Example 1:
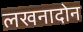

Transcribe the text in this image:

लखनादोन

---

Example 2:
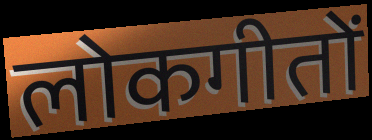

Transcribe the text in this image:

लोकगीतों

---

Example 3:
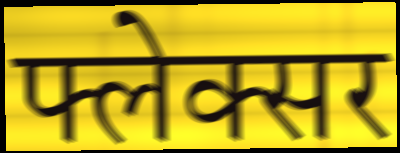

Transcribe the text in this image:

फ्लेक्सर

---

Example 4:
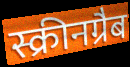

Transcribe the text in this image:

स्क्रीनग्रैब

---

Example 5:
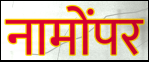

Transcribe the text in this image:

नामोंपर